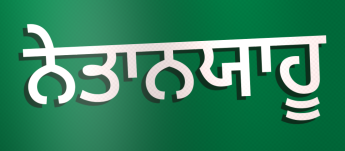
ਨੇਤਾਨਯਾਹੂ